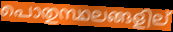
പൊതുസ്ഥലങ്ങളില്